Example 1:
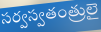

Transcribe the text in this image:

సర్వస్వతంత్రులై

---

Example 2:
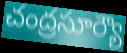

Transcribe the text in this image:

చంద్రసూర్యౌ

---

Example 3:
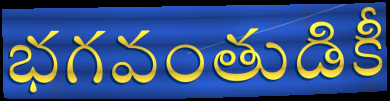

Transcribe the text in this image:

భగవంతుడికీ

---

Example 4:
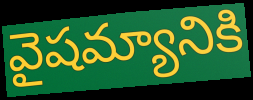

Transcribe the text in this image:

వైషమ్యానికి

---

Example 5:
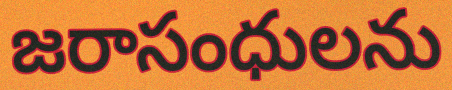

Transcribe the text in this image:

జరాసంధులను